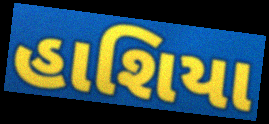
હાશિયા